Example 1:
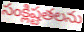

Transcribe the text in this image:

సంక్లిష్టతలను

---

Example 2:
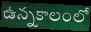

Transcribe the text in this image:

ఉన్నకాలంలో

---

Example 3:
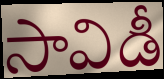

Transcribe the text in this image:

సావిడీ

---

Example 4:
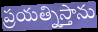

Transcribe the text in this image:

ప్రయత్నిస్తాను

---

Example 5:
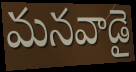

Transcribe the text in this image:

మనవాడై